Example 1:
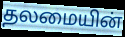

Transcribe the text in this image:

தலமையின்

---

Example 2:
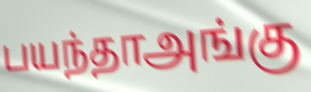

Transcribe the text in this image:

பயந்தாஅங்கு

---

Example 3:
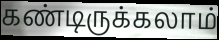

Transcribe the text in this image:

கண்டிருக்கலாம்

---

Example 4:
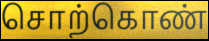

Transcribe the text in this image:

சொற்கொண்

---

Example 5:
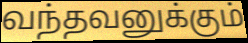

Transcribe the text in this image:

வந்தவனுக்கும்